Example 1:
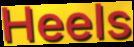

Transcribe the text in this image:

Heels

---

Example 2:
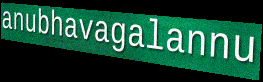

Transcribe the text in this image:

anubhavagalannu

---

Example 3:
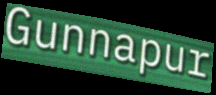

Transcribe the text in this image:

Gunnapur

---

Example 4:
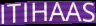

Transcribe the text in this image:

ITIHAAS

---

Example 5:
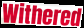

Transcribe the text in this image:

Withered